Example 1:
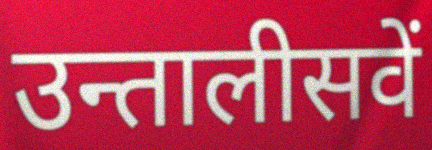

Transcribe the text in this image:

उन्तालीसवें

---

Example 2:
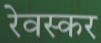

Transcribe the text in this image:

रेवस्कर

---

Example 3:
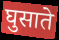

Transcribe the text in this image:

घुसाते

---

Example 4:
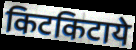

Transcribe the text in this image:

किटकिटाये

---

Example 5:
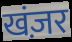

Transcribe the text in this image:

खंज़र